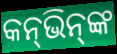
କନ୍‌ଭିନ୍‌ଙ୍କ